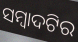
ସମ୍ବାଦଟିର